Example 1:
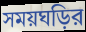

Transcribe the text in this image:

সময়ঘড়ির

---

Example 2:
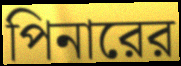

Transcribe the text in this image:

পিনারের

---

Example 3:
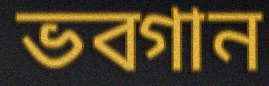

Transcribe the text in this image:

ভবগান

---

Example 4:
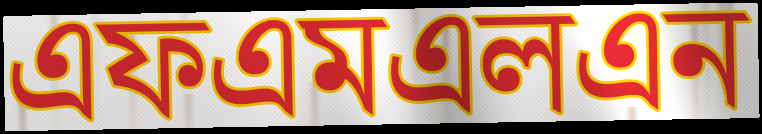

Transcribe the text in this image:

এফএমএলএন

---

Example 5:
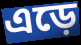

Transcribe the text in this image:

এড়ে